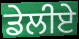
ਡੇਲੀਏ